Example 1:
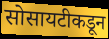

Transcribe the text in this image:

सोसायटीकडून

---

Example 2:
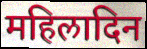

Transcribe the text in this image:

महिलादिन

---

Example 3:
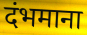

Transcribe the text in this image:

दंभमाना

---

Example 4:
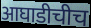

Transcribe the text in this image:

आघाडीचीच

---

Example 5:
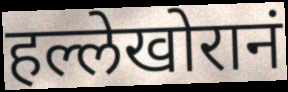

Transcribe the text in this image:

हल्लेखोरानं